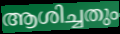
ആശിച്ചതും